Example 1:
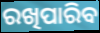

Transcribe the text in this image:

ରଖିପାରିବ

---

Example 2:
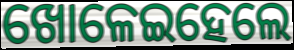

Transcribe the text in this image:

ଖୋଳେଇହେଲେ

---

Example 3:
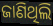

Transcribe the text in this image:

ଜାଣିଥିଲି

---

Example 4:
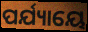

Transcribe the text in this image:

ପର୍ଯ୍ୟାୟେ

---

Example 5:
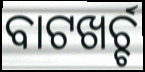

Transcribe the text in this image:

ବାଟଖର୍ଚ୍ଚ